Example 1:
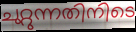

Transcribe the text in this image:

ചുറ്റുന്നതിനിടെ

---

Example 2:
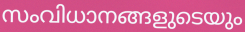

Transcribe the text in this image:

സംവിധാനങ്ങളുടെയും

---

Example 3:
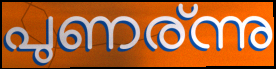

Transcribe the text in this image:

പുണര്ന്നു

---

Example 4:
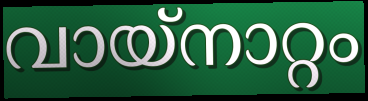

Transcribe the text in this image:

വായ്നാറ്റം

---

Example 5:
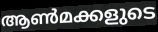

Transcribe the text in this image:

ആൺമക്കളുടെ